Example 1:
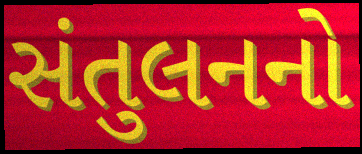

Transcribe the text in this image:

સંતુલનનો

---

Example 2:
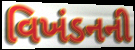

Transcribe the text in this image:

વિખંડનની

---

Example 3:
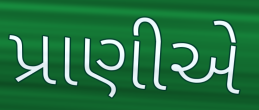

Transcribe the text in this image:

પ્રાણીએ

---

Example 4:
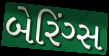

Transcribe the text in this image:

બેરિંગ્સ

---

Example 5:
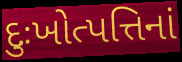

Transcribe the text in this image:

દુઃખોત્પત્તિનાં